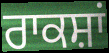
ਰਾਕਸ਼ਾਂ